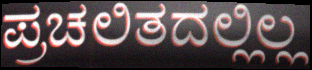
ಪ್ರಚಲಿತದಲ್ಲಿಲ್ಲ